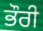
ਭੌਰੀ